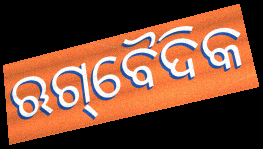
ଋଗ୍‌ବୈଦିକ